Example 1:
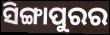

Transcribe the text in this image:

ସିଙ୍ଗାପୁରର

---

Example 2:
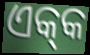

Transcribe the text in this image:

ଏକ୍‍କ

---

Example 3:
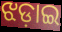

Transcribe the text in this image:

ଝଡ଼ାଇ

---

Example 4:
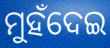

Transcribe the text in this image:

ମୁହଁଦେଇ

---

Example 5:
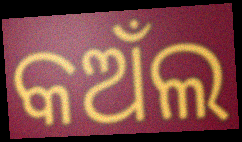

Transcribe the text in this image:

କଅଁଲ